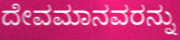
ದೇವಮಾನವರನ್ನು